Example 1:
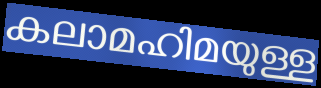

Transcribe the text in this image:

കലാമഹിമയുള്ള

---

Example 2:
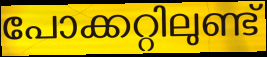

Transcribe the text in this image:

പോക്കറ്റിലുണ്ട്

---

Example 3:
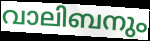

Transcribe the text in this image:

വാലിബനും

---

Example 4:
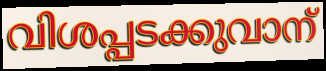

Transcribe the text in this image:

വിശപ്പടക്കുവാന്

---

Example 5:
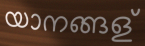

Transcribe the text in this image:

യാനങ്ങള്